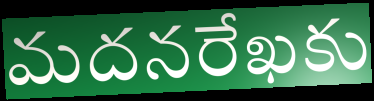
మదనరేఖకు